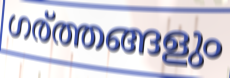
ഗര്ത്തങ്ങളും